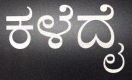
ಕಳೆದೈ